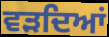
ਵੜਦਿਆਂ